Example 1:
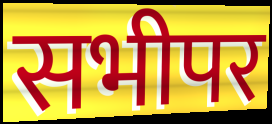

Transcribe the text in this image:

सभीपर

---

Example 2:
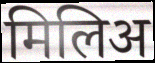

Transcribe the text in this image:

मिलिअ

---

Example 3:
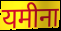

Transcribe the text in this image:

यमीना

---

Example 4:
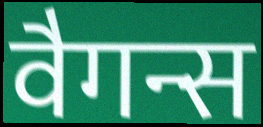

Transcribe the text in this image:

वैगन्स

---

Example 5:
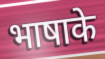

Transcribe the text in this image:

भाषाके